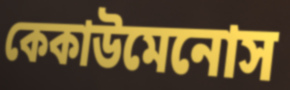
কেকাউমেনোস